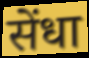
सेंधा